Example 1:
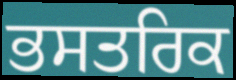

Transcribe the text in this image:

ਭਸਤਰਿਕ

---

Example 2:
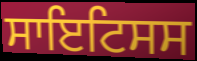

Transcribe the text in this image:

ਸਾਇਟਿਸਸ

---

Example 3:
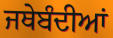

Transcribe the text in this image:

ਜਥੇਬੰਦੀਆਂ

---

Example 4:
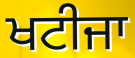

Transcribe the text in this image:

ਖਟੀਜਾ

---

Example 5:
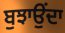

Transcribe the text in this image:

ਬੁਝਾਉਂਦਾ